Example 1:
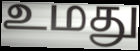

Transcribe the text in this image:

உமது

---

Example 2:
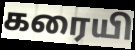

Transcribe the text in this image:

கரையி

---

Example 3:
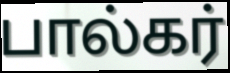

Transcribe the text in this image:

பால்கர்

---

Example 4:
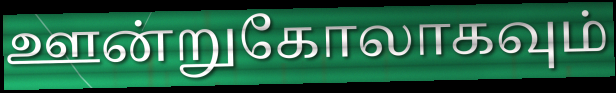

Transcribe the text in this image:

ஊன்றுகோலாகவும்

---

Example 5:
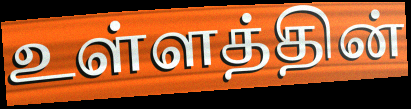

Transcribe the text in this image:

உள்ளத்தின்